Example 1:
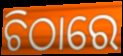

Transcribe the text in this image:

ଚିଠାରେ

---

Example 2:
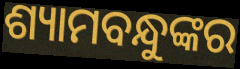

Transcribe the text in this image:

ଶ୍ୟାମବନ୍ଧୁଙ୍କର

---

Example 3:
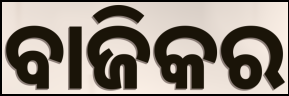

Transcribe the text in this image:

ବାଜିକର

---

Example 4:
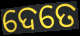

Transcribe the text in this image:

ଦେତେ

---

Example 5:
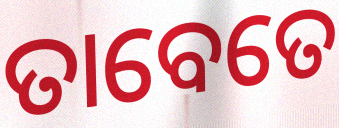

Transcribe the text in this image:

ତାବେତେ